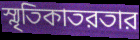
স্মৃতিকাতরতার